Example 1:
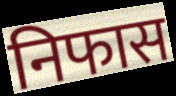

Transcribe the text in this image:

निफास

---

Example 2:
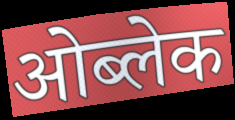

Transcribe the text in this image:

ओब्लेक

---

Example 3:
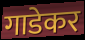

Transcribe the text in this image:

गाडेकर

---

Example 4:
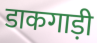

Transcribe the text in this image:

डाकगाड़ी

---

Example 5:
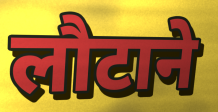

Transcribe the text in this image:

लौटाने